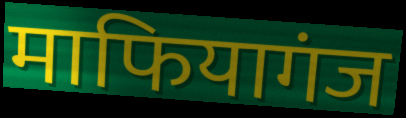
माफियागंज